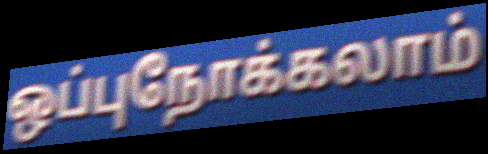
ஒப்புநோக்கலாம்